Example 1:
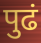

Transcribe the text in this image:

पुढं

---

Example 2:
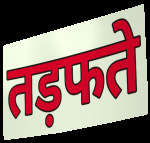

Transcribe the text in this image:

तड़फते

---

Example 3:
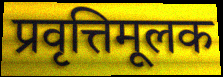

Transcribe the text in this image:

प्रवृत्तिमूलक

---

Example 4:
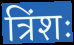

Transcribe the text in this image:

त्रिंशः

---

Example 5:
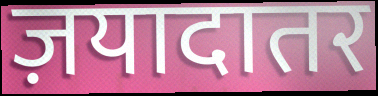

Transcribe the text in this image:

ज़यादातर